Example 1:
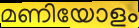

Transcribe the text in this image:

മണിയോളം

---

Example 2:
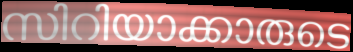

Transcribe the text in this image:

സിറിയാക്കാരുടെ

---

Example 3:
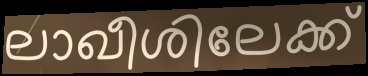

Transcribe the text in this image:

ലാഖീശിലേക്ക്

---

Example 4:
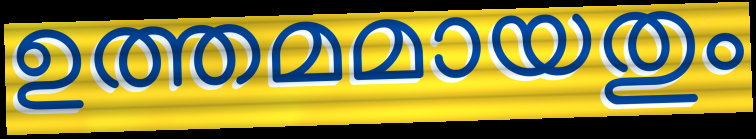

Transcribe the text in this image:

ഉത്തമമായതും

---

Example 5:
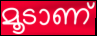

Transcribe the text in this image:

മൂടാണ്